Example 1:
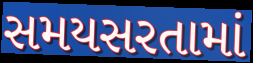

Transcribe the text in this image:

સમયસરતામાં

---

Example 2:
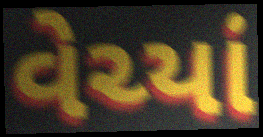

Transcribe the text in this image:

વેચ્યાં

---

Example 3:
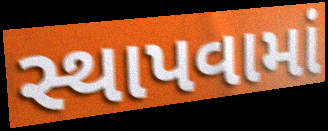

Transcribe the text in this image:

સ્થાપવામાં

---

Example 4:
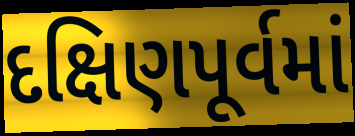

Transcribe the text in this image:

દક્ષિણપૂર્વમાં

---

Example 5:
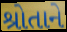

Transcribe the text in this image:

શ્રોતાને